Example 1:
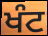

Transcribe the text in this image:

ਖੰਟ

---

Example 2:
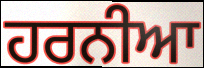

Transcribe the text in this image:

ਹਰਨੀਆ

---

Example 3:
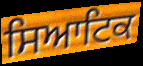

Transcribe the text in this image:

ਸਿਆਟਿਕ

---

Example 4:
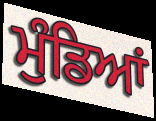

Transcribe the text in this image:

ਮੁੰਡਿਆਂ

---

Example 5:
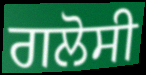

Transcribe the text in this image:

ਗਲੋਸੀ